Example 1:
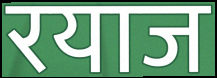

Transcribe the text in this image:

रयाज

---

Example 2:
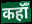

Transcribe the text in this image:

कहॉँ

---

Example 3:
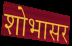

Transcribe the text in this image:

शोभासर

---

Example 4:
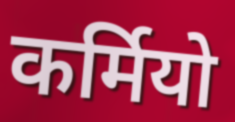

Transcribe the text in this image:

कर्मियो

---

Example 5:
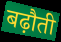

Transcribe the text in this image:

बढ़ौती